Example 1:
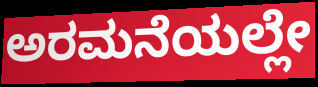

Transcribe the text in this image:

ಅರಮನೆಯಲ್ಲೇ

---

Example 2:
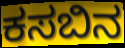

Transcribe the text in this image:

ಕಸಬಿನ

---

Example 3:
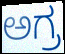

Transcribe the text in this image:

ಅಗ್ರ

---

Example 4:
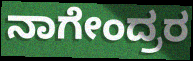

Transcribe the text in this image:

ನಾಗೇಂದ್ರರ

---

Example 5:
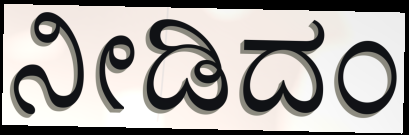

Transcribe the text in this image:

ನೀಡಿದಂ